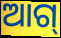
ଆଗ୍